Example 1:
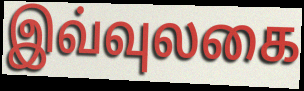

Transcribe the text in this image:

இவ்வுலகை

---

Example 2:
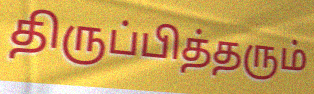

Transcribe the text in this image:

திருப்பித்தரும்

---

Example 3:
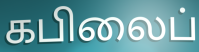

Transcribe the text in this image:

கபிலைப்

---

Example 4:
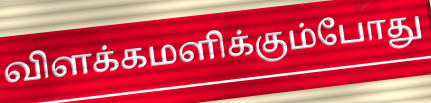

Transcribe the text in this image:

விளக்கமளிக்கும்போது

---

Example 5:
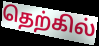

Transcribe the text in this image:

தெற்கில்